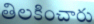
తిలకించారు